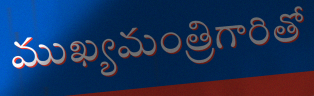
ముఖ్యమంత్రిగారితో